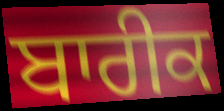
ਬਾਰੀਕ